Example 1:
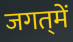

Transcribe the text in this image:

जगत्‌में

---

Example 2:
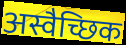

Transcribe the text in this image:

अस्वैच्छिक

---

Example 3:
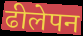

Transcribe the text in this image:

ढीलेपन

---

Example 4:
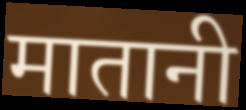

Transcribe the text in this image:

मातानी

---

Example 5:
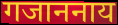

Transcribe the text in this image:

गजाननाय